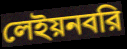
লেইয়নবরি